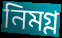
নিমগ্ন